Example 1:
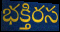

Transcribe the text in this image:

భక్తిరస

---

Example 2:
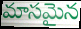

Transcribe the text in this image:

మాసమైన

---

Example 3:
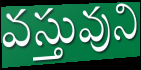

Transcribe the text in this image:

వస్తువుని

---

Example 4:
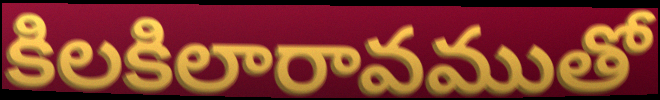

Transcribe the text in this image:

కిలకిలారావముతో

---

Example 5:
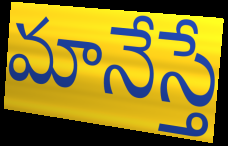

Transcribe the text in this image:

మానేస్తే